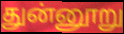
துன்னூறு